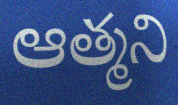
ఆత్మని